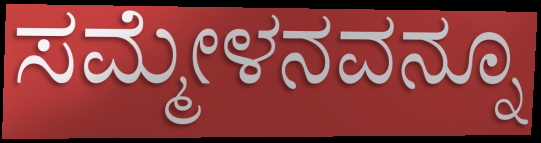
ಸಮ್ಮೇಳನವನ್ನೂ